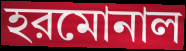
হরমোনাল